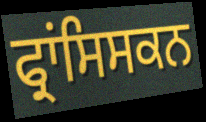
ਫ੍ਰਾਂਸਿਸਕਨ